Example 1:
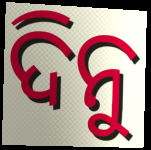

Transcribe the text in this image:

ଦିନୁ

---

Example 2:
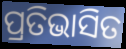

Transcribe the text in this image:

ପ୍ରତିଭାସିତ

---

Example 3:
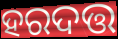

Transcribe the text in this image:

ହରଦତ୍ତ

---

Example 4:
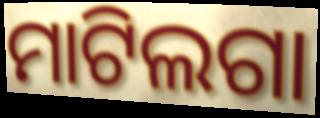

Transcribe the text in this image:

ମାଟିଲଗା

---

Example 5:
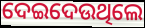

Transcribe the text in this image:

ଦେଇଦେଉଥିଲେ